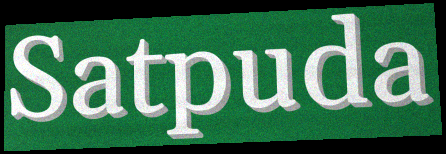
Satpuda